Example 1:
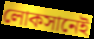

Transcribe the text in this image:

লোকসানেই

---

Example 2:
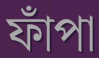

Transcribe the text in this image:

ফাঁপা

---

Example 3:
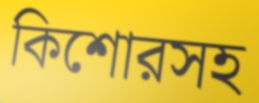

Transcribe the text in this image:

কিশোরসহ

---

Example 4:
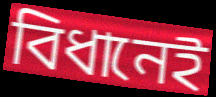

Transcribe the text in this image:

বিধানেই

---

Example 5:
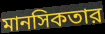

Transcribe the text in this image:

মানসিকতার